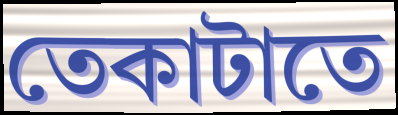
তেকাটাতে